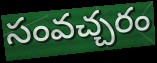
సంవచ్చరం